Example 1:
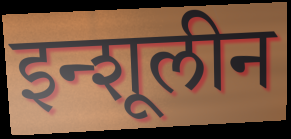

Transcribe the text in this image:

इन्शूलीन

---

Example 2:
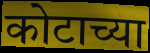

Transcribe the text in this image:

कोटाच्या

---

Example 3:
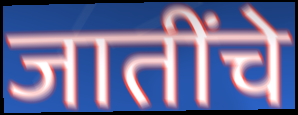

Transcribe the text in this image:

जातींचे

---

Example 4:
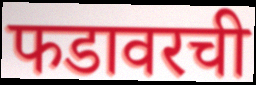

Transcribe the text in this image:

फडावरची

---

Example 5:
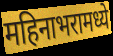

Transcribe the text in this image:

महिनाभरामध्ये